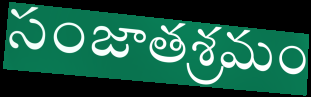
సంజాతశ్రమం